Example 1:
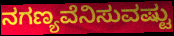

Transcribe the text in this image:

ನಗಣ್ಯವೆನಿಸುವಷ್ಟು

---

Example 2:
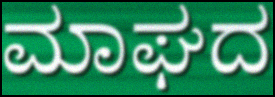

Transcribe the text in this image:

ಮಾಘದ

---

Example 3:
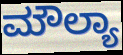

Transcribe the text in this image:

ಮೌಲ್ಯಾ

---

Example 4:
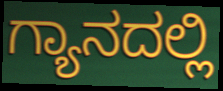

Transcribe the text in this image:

ಗ್ಯಾನದಲ್ಲಿ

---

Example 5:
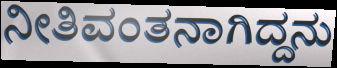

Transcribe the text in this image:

ನೀತಿವಂತನಾಗಿದ್ದನು